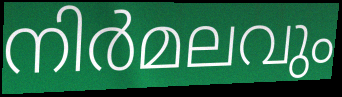
നിർമലവും